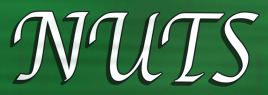
NUTS